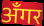
अँगर